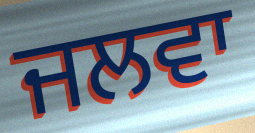
ਜਲਵਾ